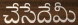
చేసేదేమీ